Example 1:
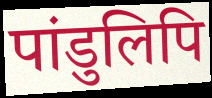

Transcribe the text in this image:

पांडुलिपि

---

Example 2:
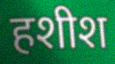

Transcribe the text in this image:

हशीश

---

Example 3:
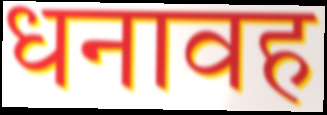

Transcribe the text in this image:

धनावह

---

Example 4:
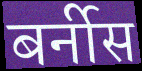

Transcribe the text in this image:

बर्नीस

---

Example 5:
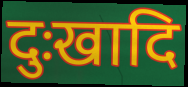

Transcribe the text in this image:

दुःखादि